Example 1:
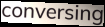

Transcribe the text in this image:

conversing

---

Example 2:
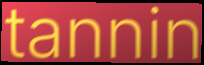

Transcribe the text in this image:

tannin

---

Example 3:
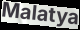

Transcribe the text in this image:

Malatya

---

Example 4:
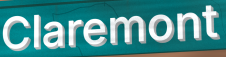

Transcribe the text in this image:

Claremont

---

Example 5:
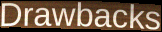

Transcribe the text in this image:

Drawbacks